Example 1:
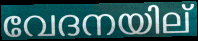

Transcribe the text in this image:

വേദനയില്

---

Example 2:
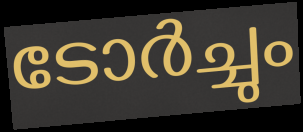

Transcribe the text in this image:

ടോർച്ചും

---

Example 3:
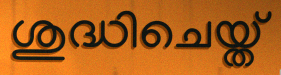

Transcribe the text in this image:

ശുദ്ധിചെയ്ത്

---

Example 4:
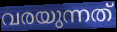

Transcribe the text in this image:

വരയുന്നത്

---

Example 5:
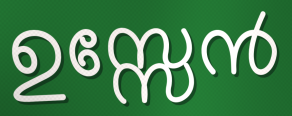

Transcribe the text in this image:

ഉസ്സേൻ